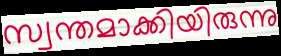
സ്വന്തമാക്കിയിരുന്നു